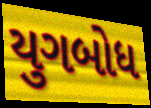
યુગબોધ